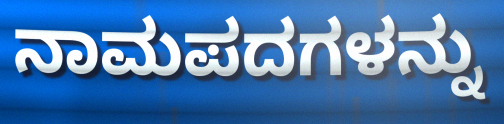
ನಾಮಪದಗಳನ್ನು